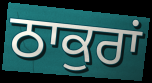
ਠਾਕੁਰਾਂ